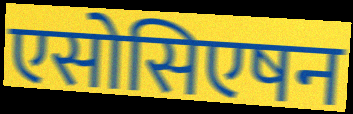
एसोसिएषन